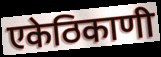
एकेठिकाणी